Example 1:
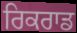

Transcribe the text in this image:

ਰਿਕਰਾਡ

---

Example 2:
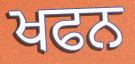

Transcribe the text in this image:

ਖਫਨ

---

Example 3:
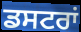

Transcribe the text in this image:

ਡਸਟਰਾਂ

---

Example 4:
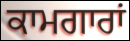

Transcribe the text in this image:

ਕਾਮਗਾਰਾਂ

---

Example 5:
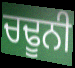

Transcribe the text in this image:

ਚਢੂਨੀ